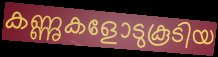
കണ്ണുകളോടുകൂടിയ